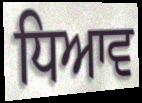
ਧਿਆਵ